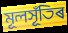
মূলসূঁতিৰ